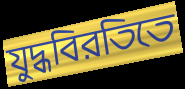
যুদ্ধবিরতিতে